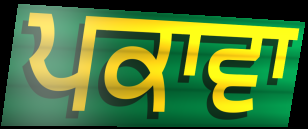
ਪਕਾਵਾ